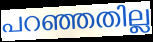
പറഞ്ഞതില്ല